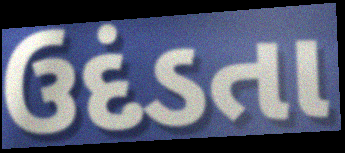
ઉદંડતા